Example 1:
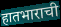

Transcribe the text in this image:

हातभाराची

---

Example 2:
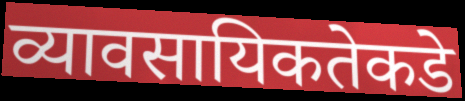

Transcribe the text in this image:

व्यावसायिकतेकडे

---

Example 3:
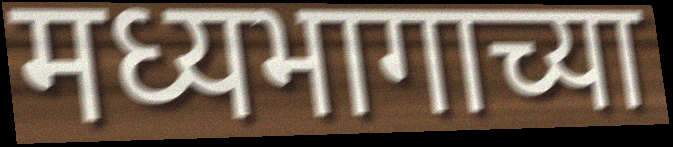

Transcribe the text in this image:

मध्यभागाच्या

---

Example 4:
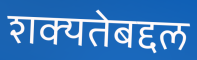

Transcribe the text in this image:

शक्यतेबद्दल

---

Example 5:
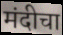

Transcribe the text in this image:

मंदीचा